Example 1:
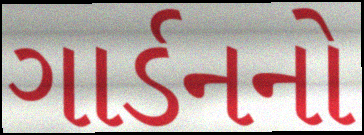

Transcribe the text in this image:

ગાર્ડનનો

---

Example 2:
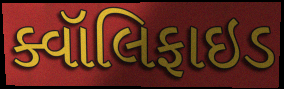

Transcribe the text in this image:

ક્વૉલિફાઇડ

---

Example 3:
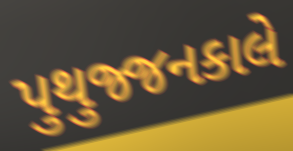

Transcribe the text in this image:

પુથુજ્જનકાલે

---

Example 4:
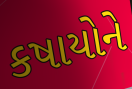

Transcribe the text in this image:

કષાયોને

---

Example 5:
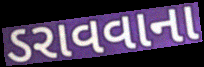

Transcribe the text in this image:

ડરાવવાના